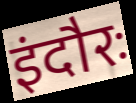
इंदौरः